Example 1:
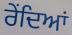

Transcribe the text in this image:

ਰੇਂਦਿਆਂ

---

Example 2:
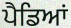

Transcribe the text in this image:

ਪੈਡਿਆਂ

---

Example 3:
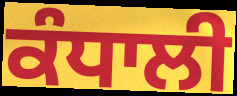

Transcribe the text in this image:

ਕੰਧਾਲੀ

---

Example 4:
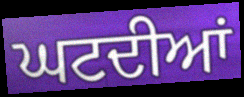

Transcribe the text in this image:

ਘਟਦੀਆਂ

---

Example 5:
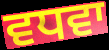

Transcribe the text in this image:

ਵਧਵਾ